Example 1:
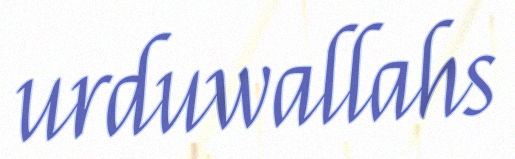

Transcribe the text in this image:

urduwallahs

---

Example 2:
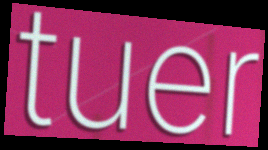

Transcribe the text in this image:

tuer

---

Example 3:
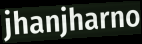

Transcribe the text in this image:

jhanjharno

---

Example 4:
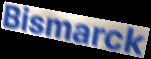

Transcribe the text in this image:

Bismarck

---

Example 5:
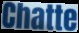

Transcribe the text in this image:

Chatte